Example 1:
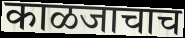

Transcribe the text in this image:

काळजाचाच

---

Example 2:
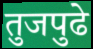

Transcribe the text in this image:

तुजपुढे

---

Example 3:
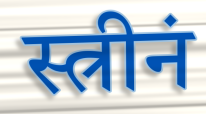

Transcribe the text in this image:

स्त्रीनं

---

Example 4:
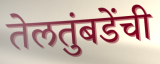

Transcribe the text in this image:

तेलतुंबडेंची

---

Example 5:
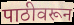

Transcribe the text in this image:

पाठीवरून